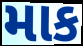
માક